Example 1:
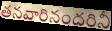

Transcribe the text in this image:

తనవారినందరినీ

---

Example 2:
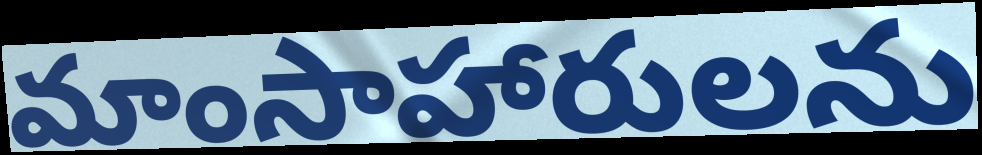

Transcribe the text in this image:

మాంసాహారులను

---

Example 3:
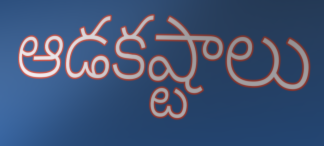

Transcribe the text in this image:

ఆడకష్టాలు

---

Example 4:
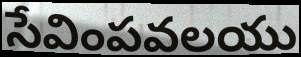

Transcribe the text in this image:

సేవింపవలయు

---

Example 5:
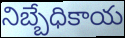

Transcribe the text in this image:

నిబ్బేధికాయ